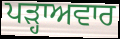
ਪੜ੍ਹਾਅਵਾਰ